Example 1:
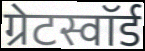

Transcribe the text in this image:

ग्रेटस्वॉर्ड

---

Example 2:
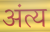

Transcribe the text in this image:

अंत्य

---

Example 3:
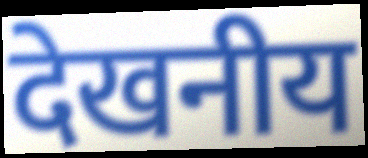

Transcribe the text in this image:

देखनीय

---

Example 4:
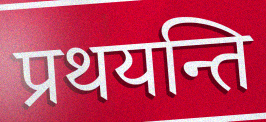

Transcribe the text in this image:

प्रथयन्ति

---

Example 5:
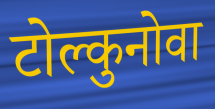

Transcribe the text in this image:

टोल्कुनोवा